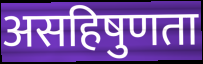
असहिषुणता